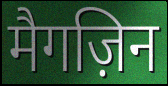
मैगज़िन